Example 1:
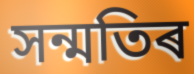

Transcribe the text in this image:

সন্মতিৰ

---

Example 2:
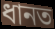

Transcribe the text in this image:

ধানত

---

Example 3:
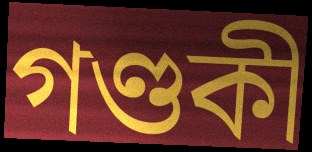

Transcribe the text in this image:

গণ্ডকী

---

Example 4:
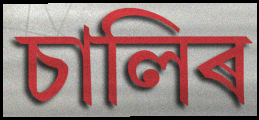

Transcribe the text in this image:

চালিৰ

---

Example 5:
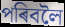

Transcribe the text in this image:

পৰিবলৈ